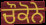
ਚੌਕੋਨੇ